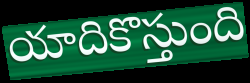
యాదికొస్తుంది